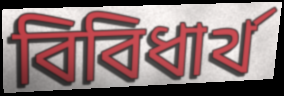
বিবিধার্থ